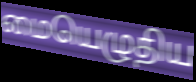
மையெழுதிய